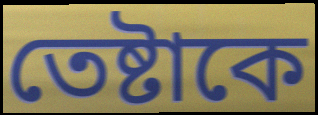
তেষ্টাকে